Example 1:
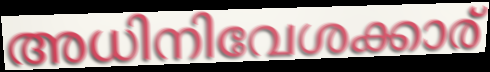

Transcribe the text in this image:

അധിനിവേശക്കാര്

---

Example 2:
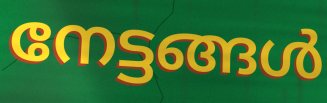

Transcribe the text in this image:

നേട്ടങ്ങൾ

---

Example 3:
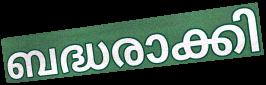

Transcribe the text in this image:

ബദ്ധരാക്കി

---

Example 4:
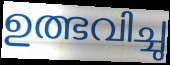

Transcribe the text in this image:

ഉത്ഭവിച്ചു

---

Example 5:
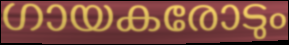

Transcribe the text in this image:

ഗായകരോടും